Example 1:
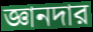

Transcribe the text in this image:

জ্ঞানদার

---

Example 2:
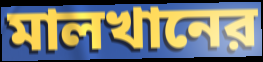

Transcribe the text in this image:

মালখানের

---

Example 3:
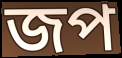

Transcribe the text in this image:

জপ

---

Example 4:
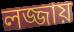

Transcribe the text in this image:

লজ্জায়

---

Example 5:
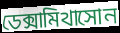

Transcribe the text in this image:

ডেক্সামিথাসোন